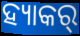
ହ୍ୟାକର୍